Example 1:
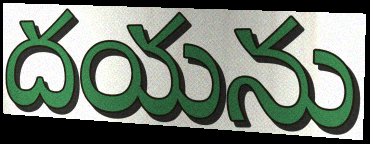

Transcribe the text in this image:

దయను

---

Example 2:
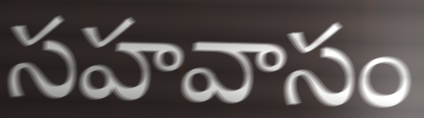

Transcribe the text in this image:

సహవాసం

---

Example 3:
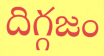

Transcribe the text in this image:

దిగ్గజం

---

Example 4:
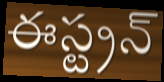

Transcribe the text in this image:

ఈస్ట్రన్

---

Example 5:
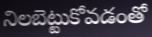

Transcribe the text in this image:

నిలబెట్టుకోవడంతో